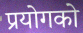
प्रयोगको